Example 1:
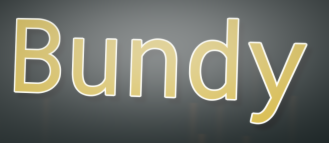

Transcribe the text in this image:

Bundy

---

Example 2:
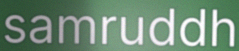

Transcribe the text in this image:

samruddh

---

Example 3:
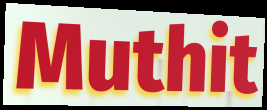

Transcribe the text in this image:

Muthit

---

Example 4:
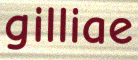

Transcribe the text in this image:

gilliae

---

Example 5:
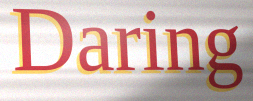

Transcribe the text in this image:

Daring